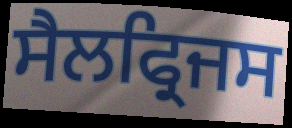
ਸੈਲਫ੍ਰਿਜਸ